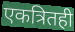
एकत्रितही